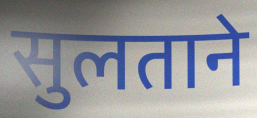
सुलताने